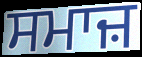
ਸਮਾਜ਼